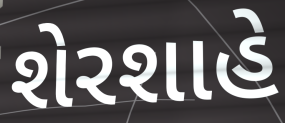
શેરશાહે